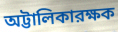
অট্টালিকারক্ষক